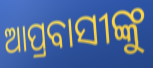
ଆପ୍ରବାସୀଙ୍କୁ